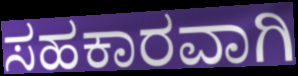
ಸಹಕಾರವಾಗಿ